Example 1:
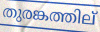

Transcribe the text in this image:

തുരങ്കത്തില്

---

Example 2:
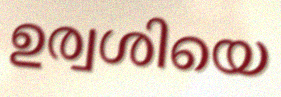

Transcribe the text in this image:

ഉര്വശിയെ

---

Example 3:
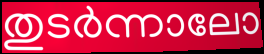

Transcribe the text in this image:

തുടർന്നാലോ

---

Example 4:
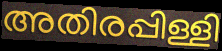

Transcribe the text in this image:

അതിരപ്പിള്ളി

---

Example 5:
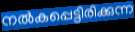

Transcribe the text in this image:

നൽകപ്പെട്ടിരിക്കുന്ന